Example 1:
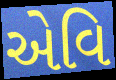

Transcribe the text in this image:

એવિ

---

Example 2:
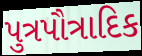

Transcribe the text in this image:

પુત્રપૌત્રાદિક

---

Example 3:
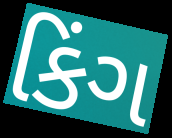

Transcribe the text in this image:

કિંગ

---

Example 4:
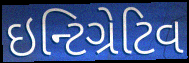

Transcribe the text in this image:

ઇન્ટિગ્રેટિવ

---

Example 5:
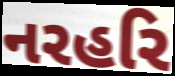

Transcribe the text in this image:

નરહરિ